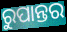
ରୁପାନ୍ତର